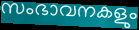
സംഭാവനകളും